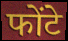
फोंटे